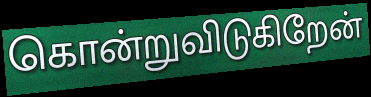
கொன்றுவிடுகிறேன்